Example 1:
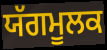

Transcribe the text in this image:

ਯੱਗਮੂਲਕ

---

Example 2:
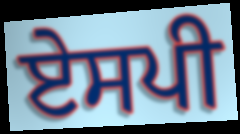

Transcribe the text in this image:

ਏਸਪੀ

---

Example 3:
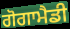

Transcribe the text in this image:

ਗੋਗਾਮੈਡੀ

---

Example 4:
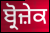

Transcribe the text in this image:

ਬ੍ਰੋਜ਼ੇਕ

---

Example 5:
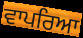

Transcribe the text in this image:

ਵਾਪਰਿਆ